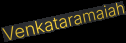
Venkataramaiah